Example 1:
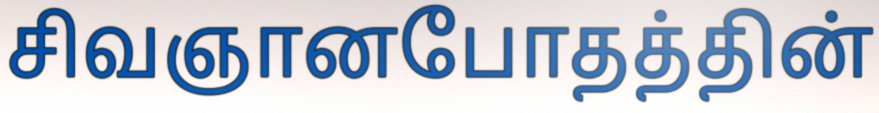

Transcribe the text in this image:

சிவஞானபோதத்தின்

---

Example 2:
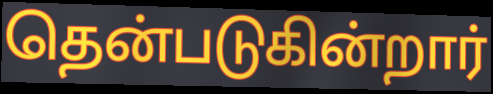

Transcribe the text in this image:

தென்படுகின்றார்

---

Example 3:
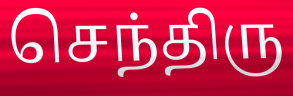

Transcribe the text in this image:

செந்திரு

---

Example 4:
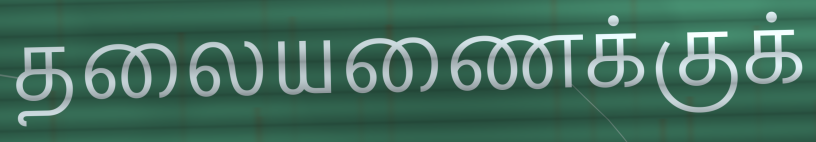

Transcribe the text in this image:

தலையணைக்குக்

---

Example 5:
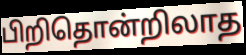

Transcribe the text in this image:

பிறிதொன்றிலாத